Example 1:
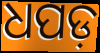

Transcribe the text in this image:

ଧପଡ଼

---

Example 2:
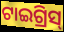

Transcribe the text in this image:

ଟାଇଗ୍ରିସ୍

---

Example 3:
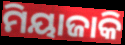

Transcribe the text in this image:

ମିୟାଜାକି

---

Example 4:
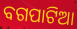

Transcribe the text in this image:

ବଗପାଟିଆ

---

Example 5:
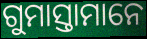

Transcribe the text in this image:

ଗୁମାସ୍ତାମାନେ